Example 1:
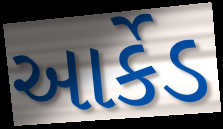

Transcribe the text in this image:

આર્કેડ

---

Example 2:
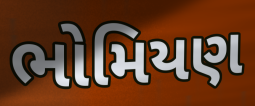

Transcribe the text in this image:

ભોમિયણ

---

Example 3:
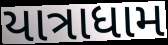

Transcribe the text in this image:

યાત્રાધામ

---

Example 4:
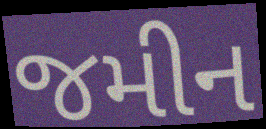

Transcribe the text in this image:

જમીન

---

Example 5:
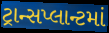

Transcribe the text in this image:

ટ્રાન્સપ્લાન્ટમાં